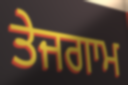
ਤੇਜਗਾਮ